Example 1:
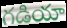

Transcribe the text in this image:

గడియా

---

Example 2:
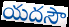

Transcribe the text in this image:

యదసౌ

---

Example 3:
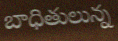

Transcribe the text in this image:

బాధితులున్న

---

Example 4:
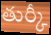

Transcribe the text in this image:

తుర్కీ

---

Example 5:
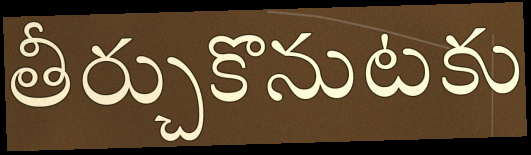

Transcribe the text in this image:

తీర్చుకొనుటకు